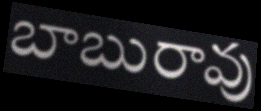
బాబురావు